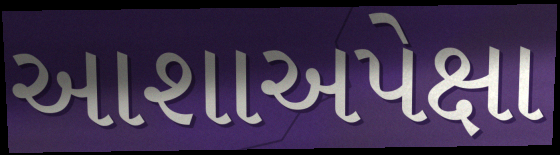
આશાઅપેક્ષા